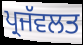
ਪ੍ਰਜੱਵਲਤ